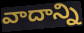
వాదాన్ని